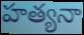
హత్యనా